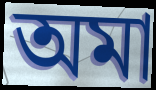
অমা